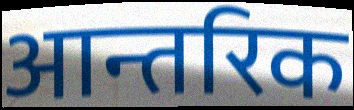
आन्तरिक